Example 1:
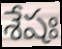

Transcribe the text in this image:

శేషః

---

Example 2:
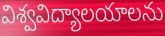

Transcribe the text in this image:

విశ్వవిద్యాలయాలను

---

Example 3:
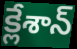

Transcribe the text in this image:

క్లేశాన్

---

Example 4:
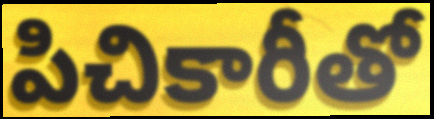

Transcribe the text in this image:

పిచికారీతో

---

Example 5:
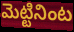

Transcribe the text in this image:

మెట్టినింట